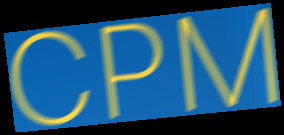
CPM